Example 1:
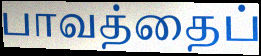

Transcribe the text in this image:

பாவத்தைப்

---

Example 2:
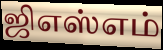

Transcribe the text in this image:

ஜிஎஸ்எம்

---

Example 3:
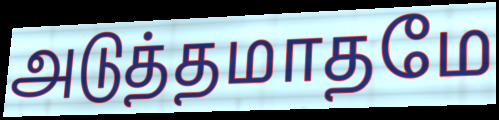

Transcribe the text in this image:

அடுத்தமாதமே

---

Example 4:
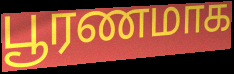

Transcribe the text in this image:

பூரணமாக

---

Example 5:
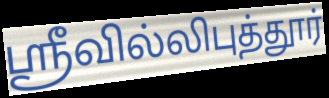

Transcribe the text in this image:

ஸ்ரீவில்லிபுத்தூர்